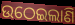
ଉଠେଇଲାଣି